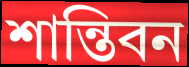
শান্তিবন